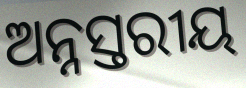
ଅନ୍ନସ୍ତରୀୟ